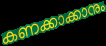
കണക്കാക്കാനും